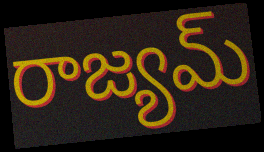
రాజ్యమ్